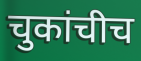
चुकांचीच